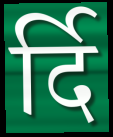
र्दि